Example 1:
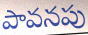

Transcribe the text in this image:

పావనపు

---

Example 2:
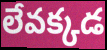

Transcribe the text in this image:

లేవక్కడ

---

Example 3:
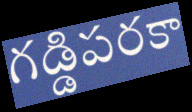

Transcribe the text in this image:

గడ్డిపరకా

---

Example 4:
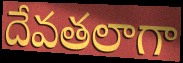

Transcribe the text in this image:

దేవతలాగా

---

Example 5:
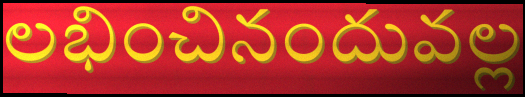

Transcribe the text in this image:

లభించినందువల్ల